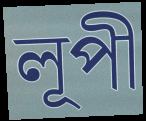
লূপী